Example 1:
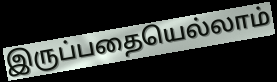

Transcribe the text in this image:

இருப்பதையெல்லாம்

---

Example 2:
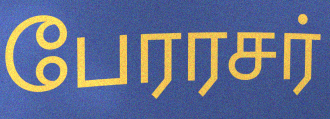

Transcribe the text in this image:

பேரரசர்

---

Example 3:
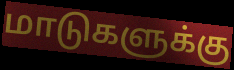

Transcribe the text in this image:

மாடுகளுக்கு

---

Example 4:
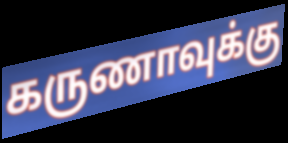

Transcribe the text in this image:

கருணாவுக்கு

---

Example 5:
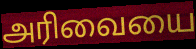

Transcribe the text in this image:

அரிவையை